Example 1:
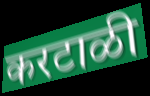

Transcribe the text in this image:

करटाळी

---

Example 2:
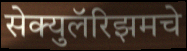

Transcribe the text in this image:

सेक्युलॅरिझमचे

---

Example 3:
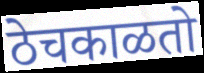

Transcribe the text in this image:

ठेचकाळतो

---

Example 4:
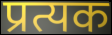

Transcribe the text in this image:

प्रत्यक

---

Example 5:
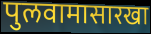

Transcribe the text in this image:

पुलवामासारखा